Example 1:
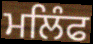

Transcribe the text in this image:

ਮਲਿੰਫ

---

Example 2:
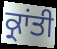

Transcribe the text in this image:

ਕ੍ਰਾਂਤੀ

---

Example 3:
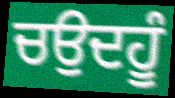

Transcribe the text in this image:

ਚਉਦਹੂੰ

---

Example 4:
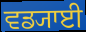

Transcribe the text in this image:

ਵਡ੍ਯਾਈ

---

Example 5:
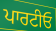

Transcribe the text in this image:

ਪਾਰਟੀਓ